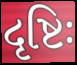
દૃષ્ટિઃ